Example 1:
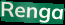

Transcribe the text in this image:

Renga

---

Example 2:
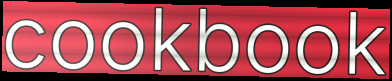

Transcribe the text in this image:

cookbook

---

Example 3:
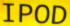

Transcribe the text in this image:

IPOD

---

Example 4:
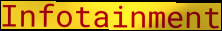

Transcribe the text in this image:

Infotainment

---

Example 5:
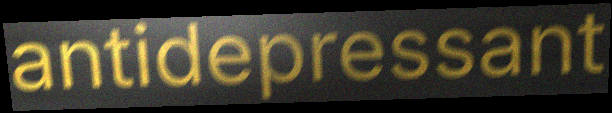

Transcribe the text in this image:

antidepressant